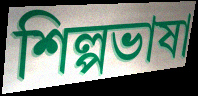
শিল্পভাষা